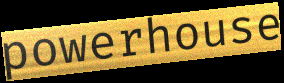
powerhouse